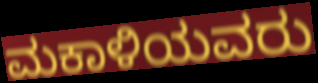
ಮಕಾಳಿಯವರು